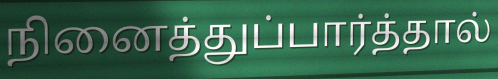
நினைத்துப்பார்த்தால்